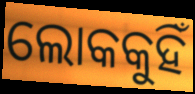
ଲୋକକୁହିଁ